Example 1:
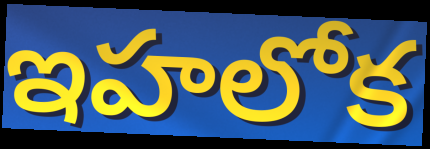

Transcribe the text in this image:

ఇహలోక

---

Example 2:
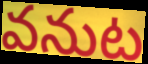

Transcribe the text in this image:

వనుట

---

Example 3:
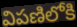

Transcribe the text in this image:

విపణిలోకి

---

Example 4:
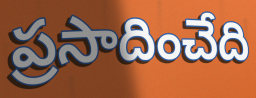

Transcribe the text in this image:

ప్రసాదించేది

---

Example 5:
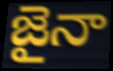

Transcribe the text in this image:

జైనా